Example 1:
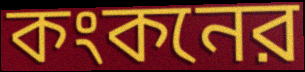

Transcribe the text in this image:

কংকনের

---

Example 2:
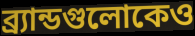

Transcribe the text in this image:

ব্র্যান্ডগুলোকেও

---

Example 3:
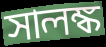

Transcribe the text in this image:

সালঙ্ক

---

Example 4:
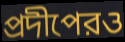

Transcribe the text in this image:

প্রদীপেরও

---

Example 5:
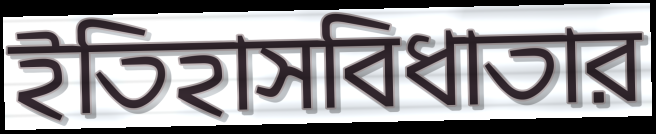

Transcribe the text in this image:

ইতিহাসবিধাতার